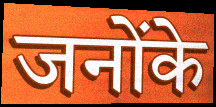
जनोंके